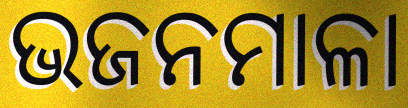
ଭଜନମାଳା